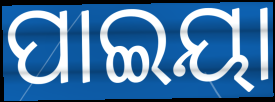
ପାଇୟା